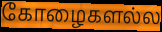
கோழைகளல்ல